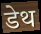
डेथ